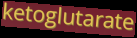
ketoglutarate